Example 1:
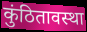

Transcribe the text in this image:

कुंठितावस्था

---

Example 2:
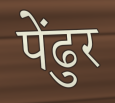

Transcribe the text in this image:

पेंढुर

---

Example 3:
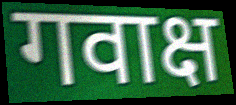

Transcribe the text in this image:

गवाक्ष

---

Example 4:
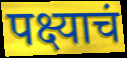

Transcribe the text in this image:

पक्ष्याचं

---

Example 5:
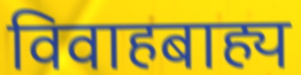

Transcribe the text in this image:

विवाहबाह्य